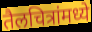
तैलचित्रांमध्ये